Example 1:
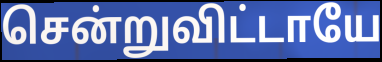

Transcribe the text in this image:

சென்றுவிட்டாயே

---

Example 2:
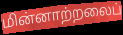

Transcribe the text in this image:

மின்னாற்றலைப்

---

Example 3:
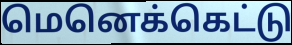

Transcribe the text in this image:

மெனெக்கெட்டு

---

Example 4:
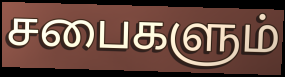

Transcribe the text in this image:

சபைகளும்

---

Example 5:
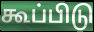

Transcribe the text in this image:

கூப்பிடு